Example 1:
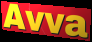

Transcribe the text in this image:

Avva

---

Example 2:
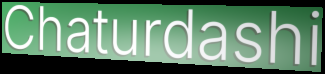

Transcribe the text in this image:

Chaturdashi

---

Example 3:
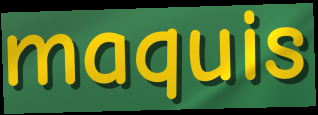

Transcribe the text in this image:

maquis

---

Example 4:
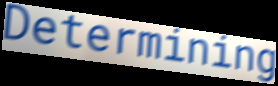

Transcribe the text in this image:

Determining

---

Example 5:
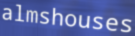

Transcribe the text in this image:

almshouses